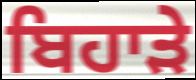
ਬਿਹਾੜੇ